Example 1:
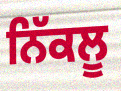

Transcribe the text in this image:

ਨਿੱਕਲੂ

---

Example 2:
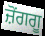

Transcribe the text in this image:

ਜ਼ੋਂਗਗੂ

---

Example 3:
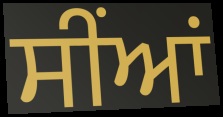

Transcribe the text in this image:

ਸੀਂਆਂ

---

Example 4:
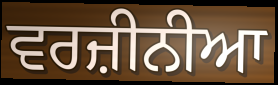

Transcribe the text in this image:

ਵਰਜ਼ੀਨੀਆ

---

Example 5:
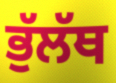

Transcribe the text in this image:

ਭੁੱਲੱਥ